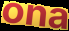
ona